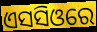
ଏସସିଓରେ